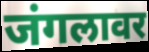
जंगलावर